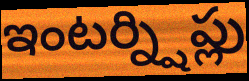
ఇంటర్న్షిప్లు